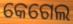
କେଗେଲ